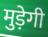
मुड़ेगी